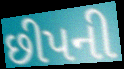
છીપની